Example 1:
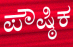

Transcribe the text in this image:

ಪೌಷ್ಠಿಕ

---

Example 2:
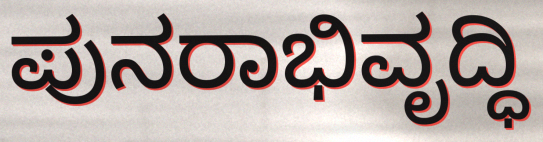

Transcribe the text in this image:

ಪುನರಾಭಿವೃದ್ಧಿ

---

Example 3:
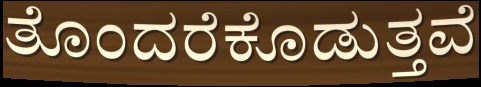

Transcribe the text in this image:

ತೊಂದರೆಕೊಡುತ್ತವೆ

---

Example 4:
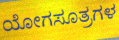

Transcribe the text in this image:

ಯೋಗಸೂತ್ರಗಳ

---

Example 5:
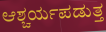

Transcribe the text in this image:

ಆಶ್ಚರ್ಯಪಡುತ್ತ